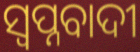
ସ୍ୱପ୍ନବାଦୀ